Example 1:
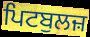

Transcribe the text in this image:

ਪਿਟਬੁਲਜ਼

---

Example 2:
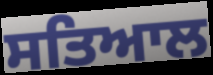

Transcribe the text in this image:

ਸਤਿਆਲ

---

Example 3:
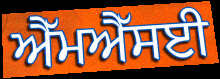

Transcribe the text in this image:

ਐੱਮਐੱਸਈ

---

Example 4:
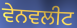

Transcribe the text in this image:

ਵੇਨਵਲੀਟ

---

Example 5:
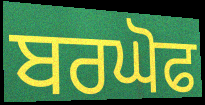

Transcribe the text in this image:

ਬਰਘੋਫ